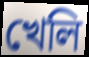
খেলি